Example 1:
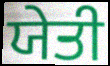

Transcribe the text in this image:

ਯੇਤੀ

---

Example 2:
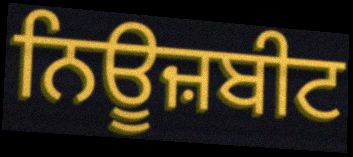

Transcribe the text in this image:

ਨਿਊਜ਼ਬੀਟ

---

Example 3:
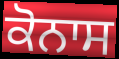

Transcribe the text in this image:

ਕੋਨਾਸ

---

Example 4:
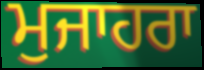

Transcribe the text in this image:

ਮੁਜਾਹਰਾ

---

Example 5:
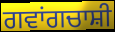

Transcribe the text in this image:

ਗਵਾਂਗਚਾਸ਼ੀ